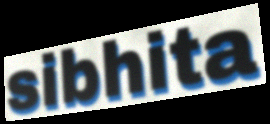
sibhita